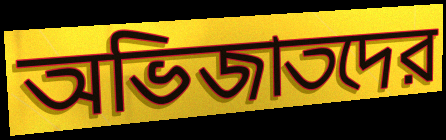
অভিজাতদের